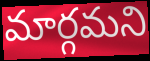
మార్గమని